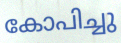
കോപിച്ചു